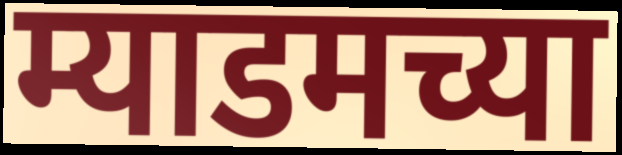
म्याडमच्या